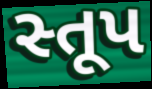
સ્તૂપ